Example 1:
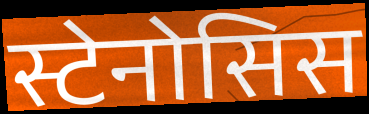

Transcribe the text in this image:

स्टेनोसिस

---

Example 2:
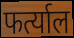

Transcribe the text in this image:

फर्त्याल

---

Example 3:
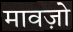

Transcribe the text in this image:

मावज़ो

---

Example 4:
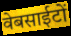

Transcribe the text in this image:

वेबसाईटों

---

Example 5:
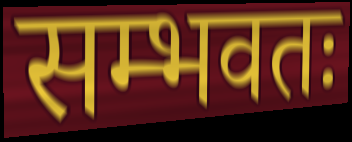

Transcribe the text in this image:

सम्भवतः